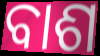
ବାଶ